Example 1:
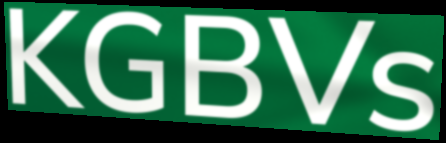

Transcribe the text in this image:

KGBVs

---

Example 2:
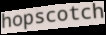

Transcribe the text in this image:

hopscotch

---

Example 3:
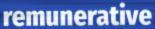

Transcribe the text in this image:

remunerative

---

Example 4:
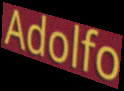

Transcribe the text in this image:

Adolfo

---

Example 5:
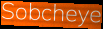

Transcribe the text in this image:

Sobcheye